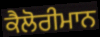
ਕੈਲੋਰੀਮਾਨ